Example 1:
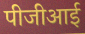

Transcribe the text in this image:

पीजीआई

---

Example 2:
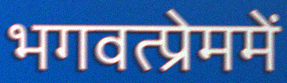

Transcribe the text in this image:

भगवत्प्रेममें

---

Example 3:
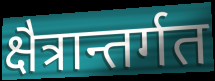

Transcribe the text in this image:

क्षैत्रान्तर्गत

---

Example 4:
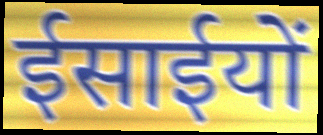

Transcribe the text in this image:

ईसाईयों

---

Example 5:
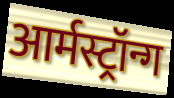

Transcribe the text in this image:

आर्मस्ट्रॉन्ग